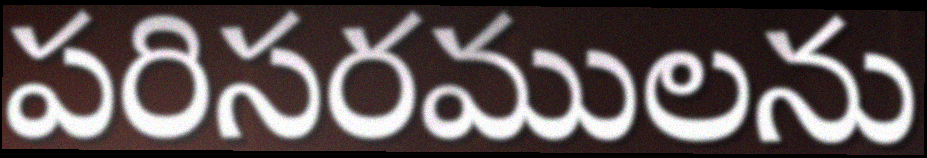
పరిసరములను